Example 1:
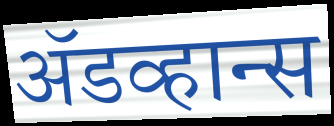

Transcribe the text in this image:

ॲडव्हान्स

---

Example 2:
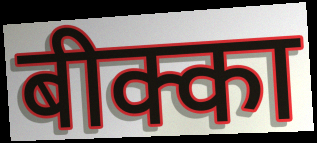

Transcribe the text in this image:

बीक्का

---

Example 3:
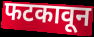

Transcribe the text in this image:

फटकावून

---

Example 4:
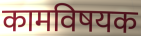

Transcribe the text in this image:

कामविषयक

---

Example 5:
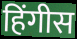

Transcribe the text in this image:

हिंगीस